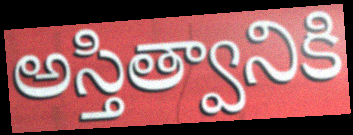
అస్తిత్వానికి